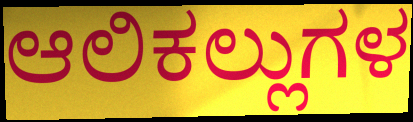
ಆಲಿಕಲ್ಲುಗಳ